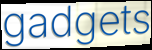
gadgets